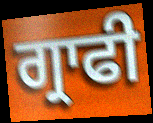
ਗ੍ਰਾਫੀ